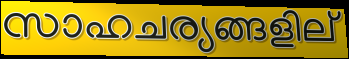
സാഹചര്യങ്ങളില്